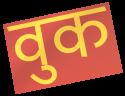
वुक